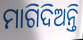
ମାଗିଦିଅନ୍ତି